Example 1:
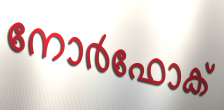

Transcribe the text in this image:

നോർഫോക്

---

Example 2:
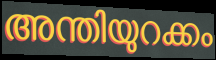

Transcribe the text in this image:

അന്തിയുറക്കം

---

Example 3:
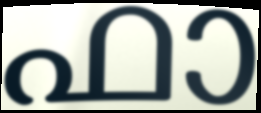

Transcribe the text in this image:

ഫാ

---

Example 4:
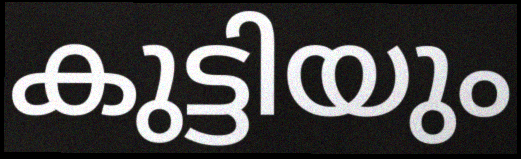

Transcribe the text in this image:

കുട്ടിയും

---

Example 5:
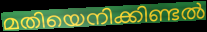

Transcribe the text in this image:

മതിയെനിക്കിണ്ടൽ